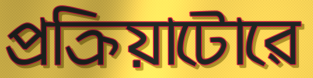
প্ৰক্ৰিয়াটোৱে